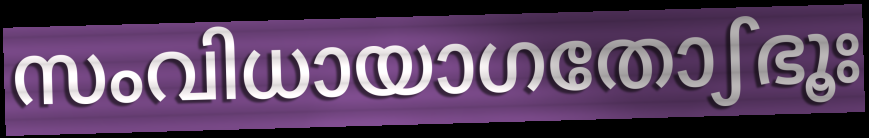
സംവിധായാഗതോഽഭൂഃ